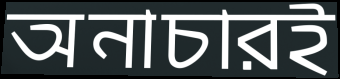
অনাচারই